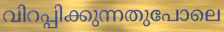
വിറപ്പിക്കുന്നതുപോലെ